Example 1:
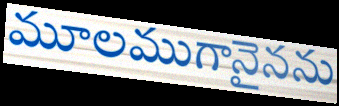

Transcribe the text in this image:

మూలముగానైనను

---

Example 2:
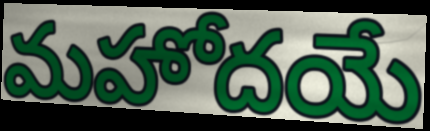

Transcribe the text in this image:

మహోదయే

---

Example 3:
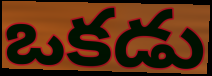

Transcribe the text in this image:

ఒకడు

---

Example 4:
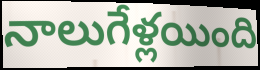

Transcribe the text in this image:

నాలుగేళ్లయింది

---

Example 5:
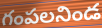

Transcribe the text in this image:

గంపలనిండ